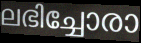
ലഭിച്ചോരാ